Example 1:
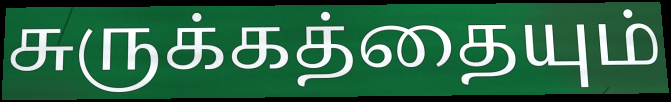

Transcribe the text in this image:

சுருக்கத்தையும்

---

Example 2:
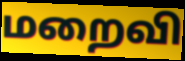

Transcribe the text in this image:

மறைவி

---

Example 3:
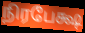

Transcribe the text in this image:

நிரபேக்ஷ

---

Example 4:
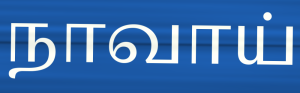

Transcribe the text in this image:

நாவாய்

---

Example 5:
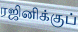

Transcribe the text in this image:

ரஜினிக்குப்